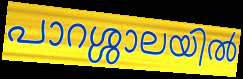
പാറശ്ശാലയിൽ